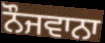
ਨੌਜਵਾਨਾ